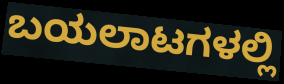
ಬಯಲಾಟಗಳಲ್ಲಿ